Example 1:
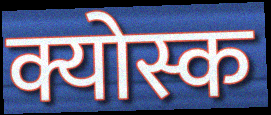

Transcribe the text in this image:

क्योस्क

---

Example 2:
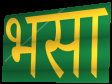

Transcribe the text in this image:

भसा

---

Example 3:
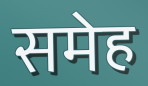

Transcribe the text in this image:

समेह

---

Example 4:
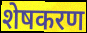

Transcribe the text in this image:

शेषकरण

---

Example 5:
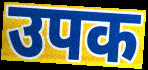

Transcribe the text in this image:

उपक